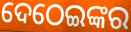
ଦେଠେଇଙ୍କର